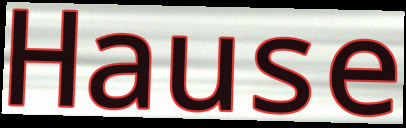
Hause